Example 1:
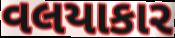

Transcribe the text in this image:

વલયાકાર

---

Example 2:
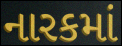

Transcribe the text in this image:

નારકમાં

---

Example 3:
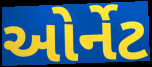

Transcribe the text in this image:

ઓર્નેટ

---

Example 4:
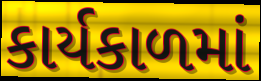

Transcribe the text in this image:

કાર્યકાળમાં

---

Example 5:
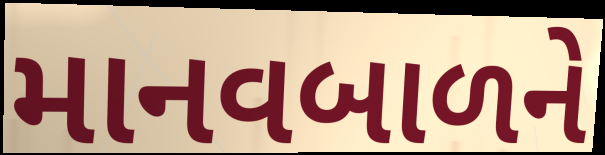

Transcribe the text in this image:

માનવબાળને